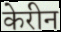
केरीन